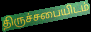
திருச்சபையிடம்